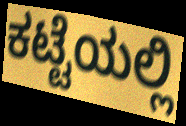
ಕಟ್ಟೆಯಲ್ಲಿ